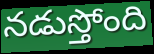
నడుస్తోంది